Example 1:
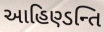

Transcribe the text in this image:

આહિણ્ડન્તિ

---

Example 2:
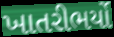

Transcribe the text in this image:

ખાતરીભર્યો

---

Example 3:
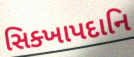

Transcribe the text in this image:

સિક્ખાપદાનિ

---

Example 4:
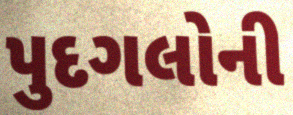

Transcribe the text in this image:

પુદગલોની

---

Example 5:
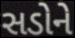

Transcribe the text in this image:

સડોને